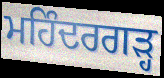
ਮਹਿੰਦਰਗੜ੍ਹ